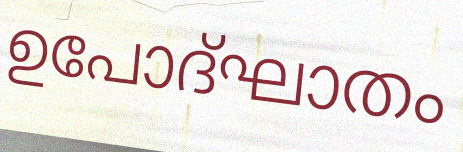
ഉപോദ്ഘാതം